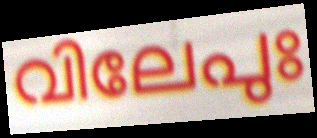
വിലേപുഃ